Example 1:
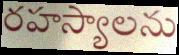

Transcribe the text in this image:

రహస్యాలను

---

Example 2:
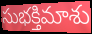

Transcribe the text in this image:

సుభక్తిమాశు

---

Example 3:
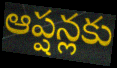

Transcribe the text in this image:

ఆప్షన్లకు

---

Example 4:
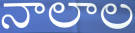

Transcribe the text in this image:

నాలాల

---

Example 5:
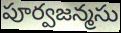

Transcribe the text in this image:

పూర్వజన్మసు